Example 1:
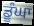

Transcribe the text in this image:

ਡੂੰਘਾ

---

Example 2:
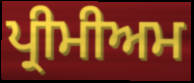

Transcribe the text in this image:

ਪ੍ਰੀਮੀਅਮ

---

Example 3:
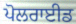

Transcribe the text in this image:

ਪੋਲਰਾਈਡ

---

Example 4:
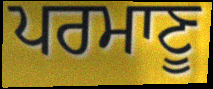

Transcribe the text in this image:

ਪਰਮਾਣੂ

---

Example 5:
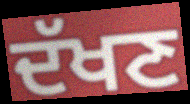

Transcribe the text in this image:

ਦੱਖਣ